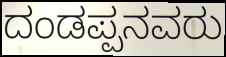
ದಂಡಪ್ಪನವರು